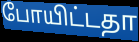
போயிட்டதா